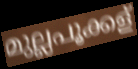
മുല്ലപൂക്കള്